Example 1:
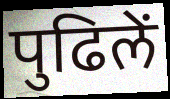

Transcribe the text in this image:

पुढिलें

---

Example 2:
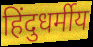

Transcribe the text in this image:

हिंदुधर्मीय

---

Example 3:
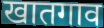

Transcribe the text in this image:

खातगाव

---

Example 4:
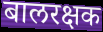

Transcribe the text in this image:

बालरक्षक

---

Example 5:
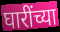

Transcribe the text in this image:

घारींच्या